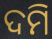
ଦମି